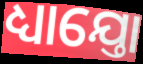
ଧ୍ୟାଯ୍ତୋ